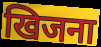
खिजना